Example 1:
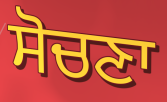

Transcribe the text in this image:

ਸੋਚਣਾ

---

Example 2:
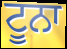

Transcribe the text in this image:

ਟੂਨਾ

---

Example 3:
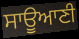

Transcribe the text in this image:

ਸਾਊਆਣੀ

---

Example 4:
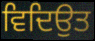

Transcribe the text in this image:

ਵਿਦਿਉਤ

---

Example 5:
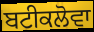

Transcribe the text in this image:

ਬਟੀਕਲੋਵਾ